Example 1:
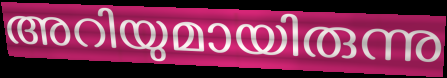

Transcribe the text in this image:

അറിയുമായിരുന്നു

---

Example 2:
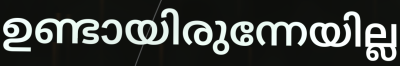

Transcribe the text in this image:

ഉണ്ടായിരുന്നേയില്ല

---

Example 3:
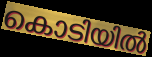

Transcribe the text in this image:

കൊടിയിൽ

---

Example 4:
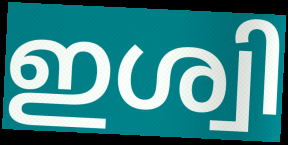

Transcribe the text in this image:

ഇശ്വി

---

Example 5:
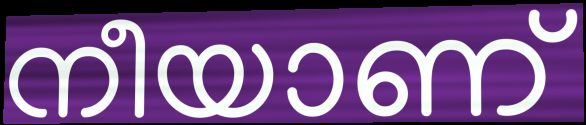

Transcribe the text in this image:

നീയാണ്